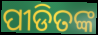
ପୀଡିତଙ୍କ